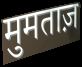
मुमताज़